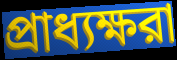
প্রাধ্যক্ষরা